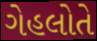
ગેહલોતે